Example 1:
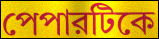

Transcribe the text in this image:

পেপারটিকে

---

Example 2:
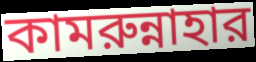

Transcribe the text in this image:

কামরুন্নাহার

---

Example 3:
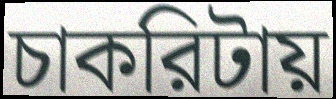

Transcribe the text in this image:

চাকরিটায়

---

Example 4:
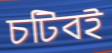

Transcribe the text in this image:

চটিবই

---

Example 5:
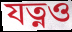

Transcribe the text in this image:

যত্নও